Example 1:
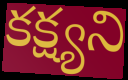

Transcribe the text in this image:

కక్ష్యని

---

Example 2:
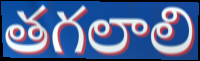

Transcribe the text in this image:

తగలాలి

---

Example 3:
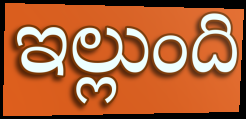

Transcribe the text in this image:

ఇల్లుంది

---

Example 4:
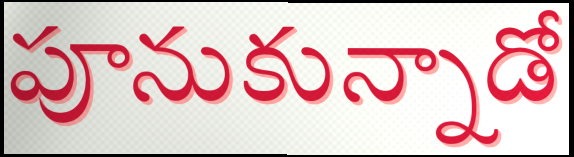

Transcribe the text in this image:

పూనుకున్నాడో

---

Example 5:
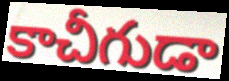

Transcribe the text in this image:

కాచీగుడా